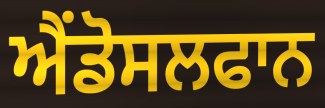
ਐਂਡੋਸਲਫਾਨ